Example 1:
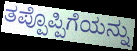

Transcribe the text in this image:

ತಪ್ಪೊಪ್ಪಿಗೆಯನ್ನು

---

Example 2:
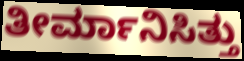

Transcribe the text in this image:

ತೀರ್ಮಾನಿಸಿತ್ತು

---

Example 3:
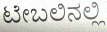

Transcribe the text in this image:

ಟೇಬಲಿನಲ್ಲಿ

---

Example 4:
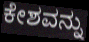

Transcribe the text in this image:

ಕೇಶವನ್ನು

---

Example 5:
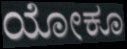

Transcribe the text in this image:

ಯೋಕೂ